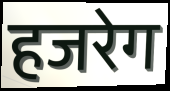
हजरेग